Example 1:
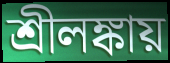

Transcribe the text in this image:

শ্রীলঙ্কায়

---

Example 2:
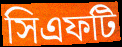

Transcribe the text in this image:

সিএফটি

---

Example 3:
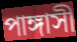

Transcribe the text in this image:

পাঙ্গাসী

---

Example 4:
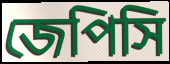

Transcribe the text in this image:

জেপিসি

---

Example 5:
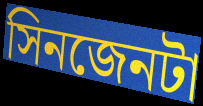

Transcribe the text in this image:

সিনজেনটা